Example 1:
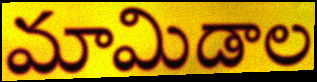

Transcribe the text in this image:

మామిడాల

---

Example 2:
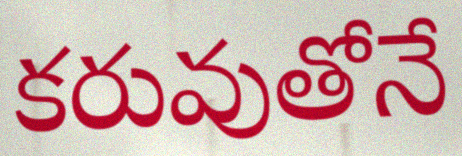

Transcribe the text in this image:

కరువుతోనే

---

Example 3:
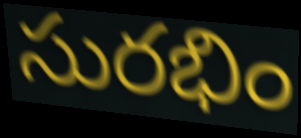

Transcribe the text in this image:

సురభిం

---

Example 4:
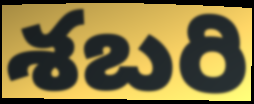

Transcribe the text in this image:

శబరి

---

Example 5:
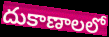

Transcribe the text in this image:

దుకాణాలలో